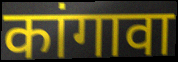
कांगावा